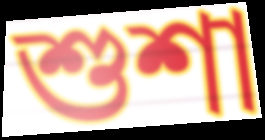
শুশা